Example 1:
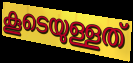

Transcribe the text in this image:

കൂടെയുള്ളത്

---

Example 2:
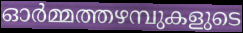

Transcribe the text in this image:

ഓർമ്മത്തഴമ്പുകളുടെ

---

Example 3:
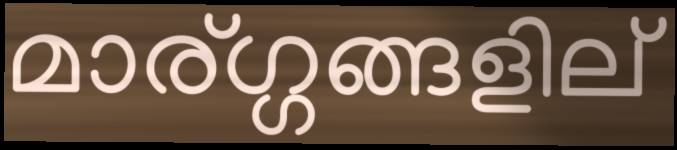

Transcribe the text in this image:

മാര്ഗ്ഗങ്ങളില്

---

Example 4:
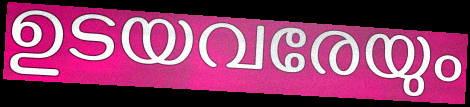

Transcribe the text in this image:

ഉടയവരേയും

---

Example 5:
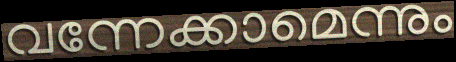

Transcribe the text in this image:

വന്നേക്കാമെന്നും